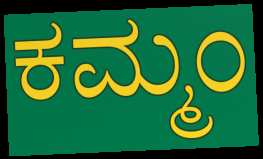
ಕಮ್ಮಂ